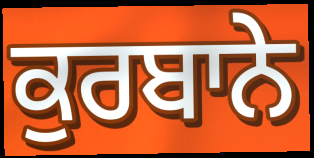
ਕੁਰਬਾਨੇ